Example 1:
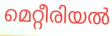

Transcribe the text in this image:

മെറ്റീരിയൽ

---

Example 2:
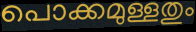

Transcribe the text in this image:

പൊക്കമുള്ളതും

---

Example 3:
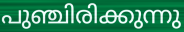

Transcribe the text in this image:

പുഞ്ചിരിക്കുന്നു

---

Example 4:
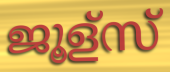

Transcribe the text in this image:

ജൂള്സ്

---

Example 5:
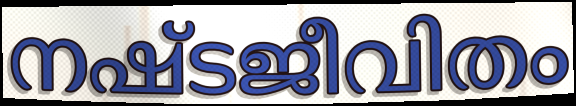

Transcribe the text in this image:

നഷ്ടജീവിതം